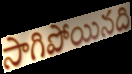
సాగిపోయినది